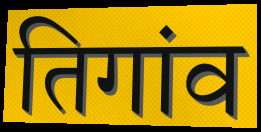
तिगांव